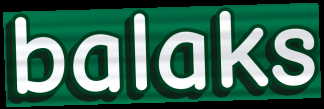
balaks